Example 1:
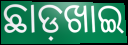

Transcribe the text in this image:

ଛାଡ଼ଖାଇ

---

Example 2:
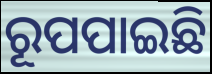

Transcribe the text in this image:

ରୂପପାଇଛି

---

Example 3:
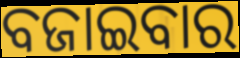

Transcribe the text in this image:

ବଜାଇବାର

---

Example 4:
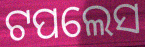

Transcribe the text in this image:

ଟପଲେସ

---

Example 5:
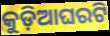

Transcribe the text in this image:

କୁଡ଼ିଆଘରଟି